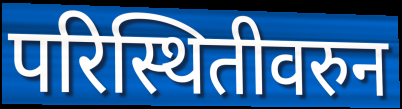
परिस्थितीवरुन